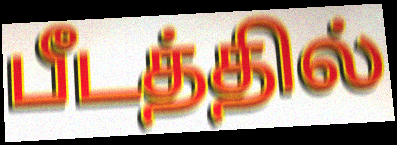
பீடத்தில்